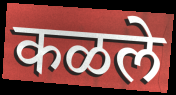
कळले